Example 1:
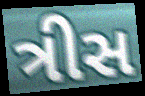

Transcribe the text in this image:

ત્રીસ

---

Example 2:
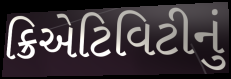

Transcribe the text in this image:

ક્રિએટિવિટીનું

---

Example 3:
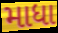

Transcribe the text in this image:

માધા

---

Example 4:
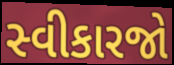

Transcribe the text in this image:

સ્વીકારજો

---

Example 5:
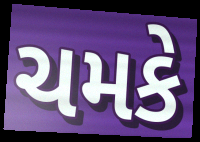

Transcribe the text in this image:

ચમકે